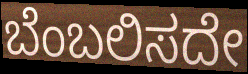
ಬೆಂಬಲಿಸದೇ